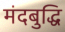
मंदबुद्धि